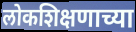
लोकशिक्षणाच्या